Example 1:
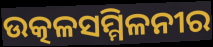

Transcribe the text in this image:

ଉତ୍କଳସମ୍ମିଳନୀର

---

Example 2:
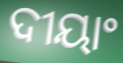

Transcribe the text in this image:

ଦୀୟାଂ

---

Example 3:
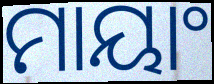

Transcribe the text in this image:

ମାୟାଂ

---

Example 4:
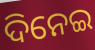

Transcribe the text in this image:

ଦିନେଇ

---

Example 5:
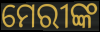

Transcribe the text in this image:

ମେରୀଙ୍କ